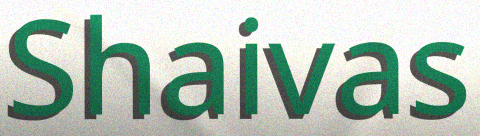
Shaivas